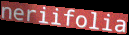
neriifolia